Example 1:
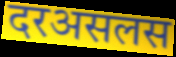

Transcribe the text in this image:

दरअसलस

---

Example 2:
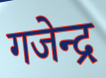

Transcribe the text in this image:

गजेन्द्र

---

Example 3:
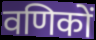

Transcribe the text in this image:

वणिकों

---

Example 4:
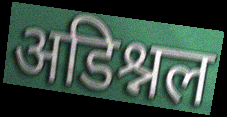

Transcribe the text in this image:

अडिश्नल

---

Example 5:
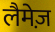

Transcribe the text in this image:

लैमेज़